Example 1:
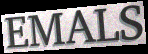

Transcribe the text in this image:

EMALS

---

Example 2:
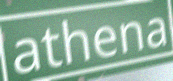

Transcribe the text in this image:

athena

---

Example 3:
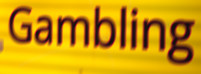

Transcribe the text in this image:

Gambling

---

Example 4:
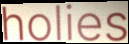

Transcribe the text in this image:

holies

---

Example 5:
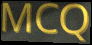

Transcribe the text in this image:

MCQ